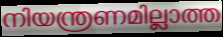
നിയന്ത്രണമില്ലാത്ത